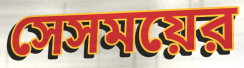
সেসময়ের